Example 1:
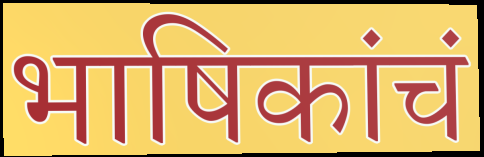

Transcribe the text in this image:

भाषिकांचं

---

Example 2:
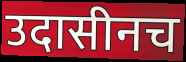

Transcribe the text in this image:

उदासीनच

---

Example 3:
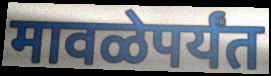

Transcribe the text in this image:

मावळेपर्यंत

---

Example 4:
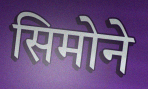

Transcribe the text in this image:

सिमोने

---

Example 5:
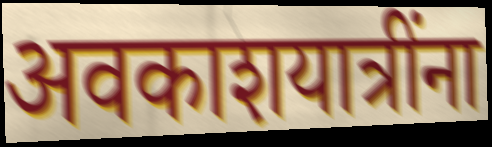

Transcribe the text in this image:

अवकाशयात्रींना